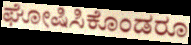
ಘೋಷಿಸಿಕೊಂಡರೂ